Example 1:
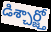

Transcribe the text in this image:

డిశ్చార్జ్తో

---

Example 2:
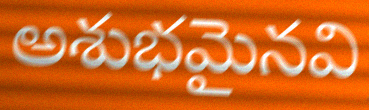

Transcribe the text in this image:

అశుభమైనవి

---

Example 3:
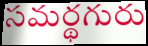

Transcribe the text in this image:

సమర్థగురు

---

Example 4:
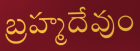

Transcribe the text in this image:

బ్రహ్మదేవుం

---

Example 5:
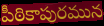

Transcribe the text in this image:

పీఠికాపురమున